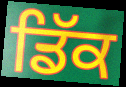
ਡਿੱਕ